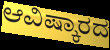
ಆವಿಷ್ಕಾರದ